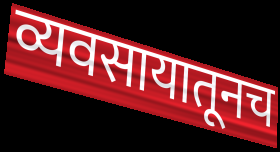
व्यवसायातूनच